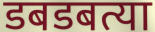
डबडबत्या